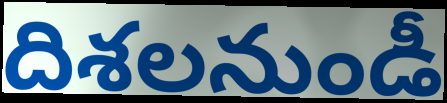
దిశలనుండీ